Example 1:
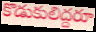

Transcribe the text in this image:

కొడుకులిద్దరూ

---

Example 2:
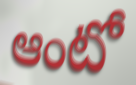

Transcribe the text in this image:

ఆంటో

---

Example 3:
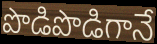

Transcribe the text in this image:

పొడిపొడిగానే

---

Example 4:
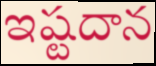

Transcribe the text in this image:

ఇష్టదాన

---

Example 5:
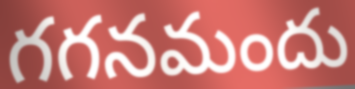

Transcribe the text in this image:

గగనమందు